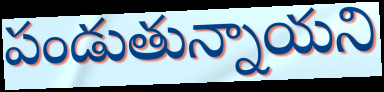
పండుతున్నాయని